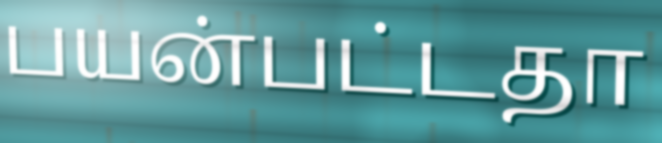
பயன்பட்டதா